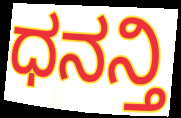
ಧನನ್ತಿ